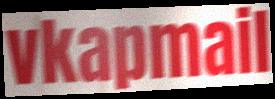
vkapmail